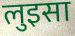
लुइसा